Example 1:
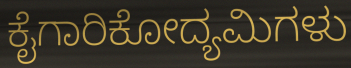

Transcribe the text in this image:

ಕೈಗಾರಿಕೋದ್ಯಮಿಗಳು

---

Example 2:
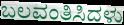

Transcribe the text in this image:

ಬಲವಂತಿಸಿದಳು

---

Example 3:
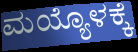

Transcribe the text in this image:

ಮಯ್ಯೊಳಕ್ಕೆ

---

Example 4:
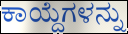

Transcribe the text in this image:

ಕಾಯ್ದೆಗಳನ್ನು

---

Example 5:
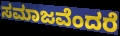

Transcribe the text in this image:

ಸಮಾಜವೆಂದರೆ